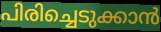
പിരിച്ചെടുക്കാൻ